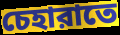
চেহারাতে